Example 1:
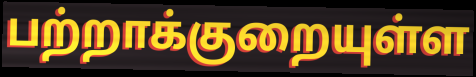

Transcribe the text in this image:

பற்றாக்குறையுள்ள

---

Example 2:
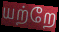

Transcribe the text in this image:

யற்றே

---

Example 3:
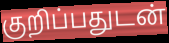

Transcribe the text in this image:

குறிப்பதுடன்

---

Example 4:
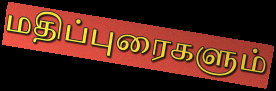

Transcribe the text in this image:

மதிப்புரைகளும்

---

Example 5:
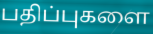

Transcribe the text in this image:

பதிப்புகளை